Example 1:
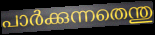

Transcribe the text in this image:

പാർക്കുന്നതെന്തു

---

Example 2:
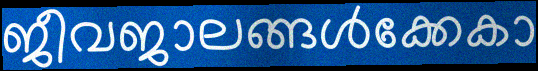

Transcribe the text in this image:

ജീവജാലങ്ങൾക്കേകാ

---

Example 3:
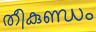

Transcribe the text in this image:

തീകുണ്ഡം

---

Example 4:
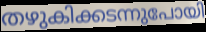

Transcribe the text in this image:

തഴുകിക്കടന്നുപോയി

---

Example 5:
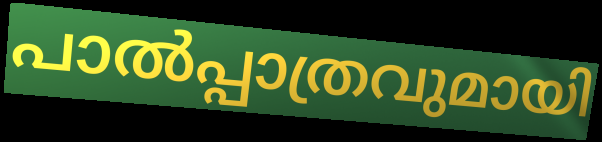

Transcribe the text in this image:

പാൽപ്പാത്രവുമായി